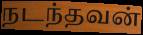
நடந்தவன்